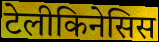
टेलीकिनेसिस